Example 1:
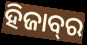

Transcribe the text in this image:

ହିଜାବ୍‌ର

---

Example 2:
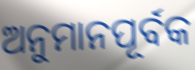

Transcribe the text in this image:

ଅନୁମାନପୂର୍ବକ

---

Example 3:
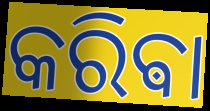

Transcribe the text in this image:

କରିଵା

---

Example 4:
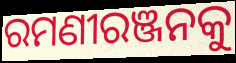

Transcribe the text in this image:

ରମଣୀରଞ୍ଜନକୁ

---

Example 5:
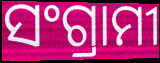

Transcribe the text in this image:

ସଂଗ୍ରାମୀ